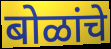
बोळांचे